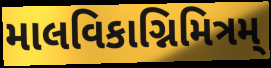
માલવિકાગ્નિમિત્રમ્